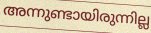
അന്നുണ്ടായിരുന്നില്ല